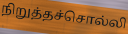
நிறுத்தச்சொல்லி